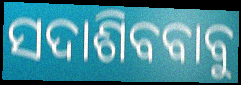
ସଦାଶିବବାବୁ